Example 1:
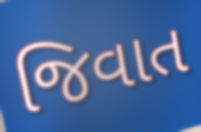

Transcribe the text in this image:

જિવાત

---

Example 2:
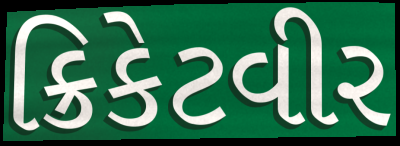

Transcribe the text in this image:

ક્રિકેટવીર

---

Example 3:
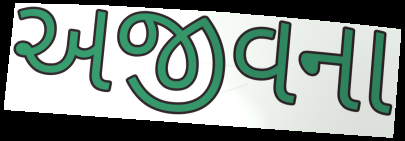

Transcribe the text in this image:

અજીવના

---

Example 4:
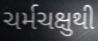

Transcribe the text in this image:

ચર્મચક્ષુથી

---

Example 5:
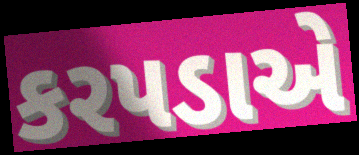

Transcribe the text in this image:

કરપડાએ